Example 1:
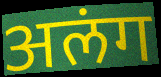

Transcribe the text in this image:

अलंग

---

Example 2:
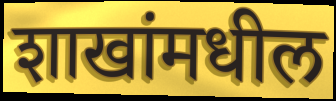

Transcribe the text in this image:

शाखांमधील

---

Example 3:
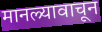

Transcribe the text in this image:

मानल्यावाचून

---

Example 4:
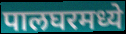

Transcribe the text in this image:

पालघरमध्ये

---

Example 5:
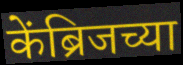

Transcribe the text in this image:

केंब्रिजच्या